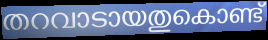
തറവാടായതുകൊണ്ട്